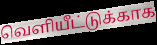
வெளியீட்டுக்காக